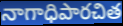
నాగాధిపారచిత